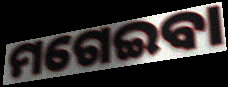
ମଗେଇବା